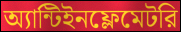
অ্যান্টিইনফ্লেমেটরি